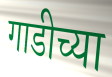
गाडीच्या